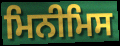
ਮਿਨੀਮਿਸ